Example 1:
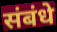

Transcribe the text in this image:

संबंधे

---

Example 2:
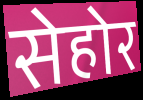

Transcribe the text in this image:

सेहोर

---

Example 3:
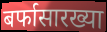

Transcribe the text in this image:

बर्फासारख्या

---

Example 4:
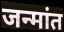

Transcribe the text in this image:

जन्मांत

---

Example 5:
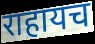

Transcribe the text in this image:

राहायच